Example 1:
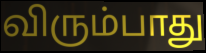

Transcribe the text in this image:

விரும்பாது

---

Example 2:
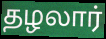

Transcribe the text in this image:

தழலார்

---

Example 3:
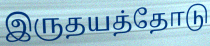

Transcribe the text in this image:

இருதயத்தோடு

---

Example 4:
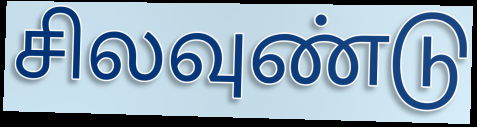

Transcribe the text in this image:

சிலவுண்டு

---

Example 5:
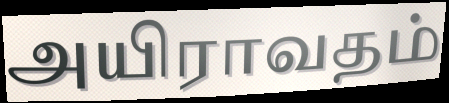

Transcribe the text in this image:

அயிராவதம்